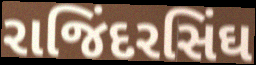
રાજિંદરસિંઘ